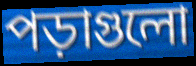
পড়াগুলো